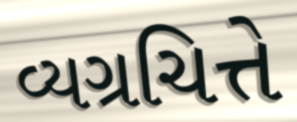
વ્યગ્રચિત્તે